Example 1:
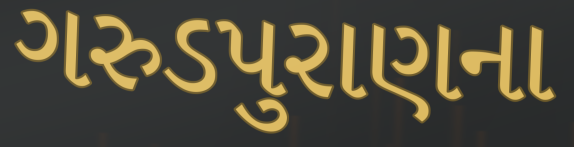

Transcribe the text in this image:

ગરુડપુરાણના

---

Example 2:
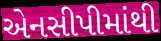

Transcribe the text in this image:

એનસીપીમાંથી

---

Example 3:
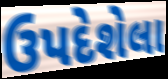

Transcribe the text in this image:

ઉપદેશેલા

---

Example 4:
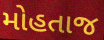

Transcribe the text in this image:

મોહતાજ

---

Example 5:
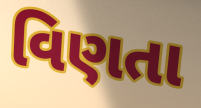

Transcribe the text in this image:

વિણતા